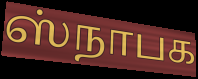
ஸ்நாபக